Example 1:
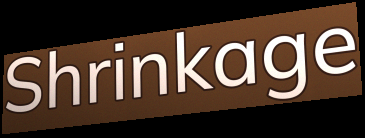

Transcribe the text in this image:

Shrinkage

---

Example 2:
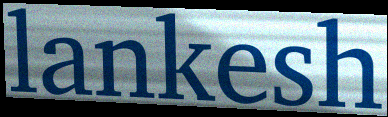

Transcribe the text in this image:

lankesh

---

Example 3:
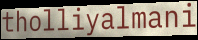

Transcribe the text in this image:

tholliyalmani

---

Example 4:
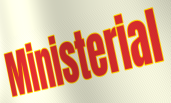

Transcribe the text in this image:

Ministerial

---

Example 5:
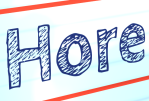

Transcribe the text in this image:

Hore